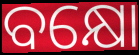
ବକ୍ଷୋ